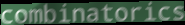
combinatorics